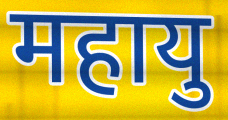
महायु